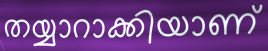
തയ്യാറാക്കിയാണ്